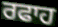
ਰਫਾਹ